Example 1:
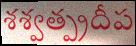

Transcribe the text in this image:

శశ్వత్ప్రదీప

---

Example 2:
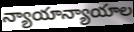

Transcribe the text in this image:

న్యాయాన్యాయాల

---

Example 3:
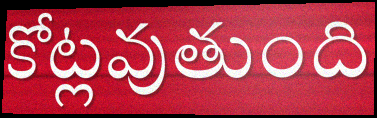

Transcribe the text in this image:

కోట్లవుతుంది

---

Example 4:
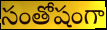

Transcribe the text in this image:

సంతోషంగా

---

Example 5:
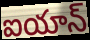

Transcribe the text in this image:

ఐయాన్